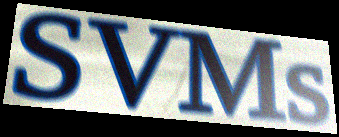
SVMs